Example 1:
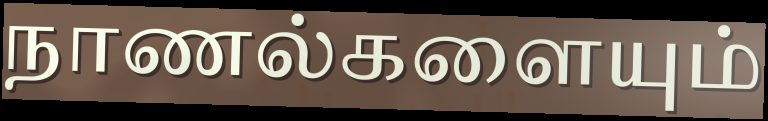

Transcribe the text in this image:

நாணல்களையும்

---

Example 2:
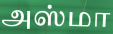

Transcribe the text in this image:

அஸ்மா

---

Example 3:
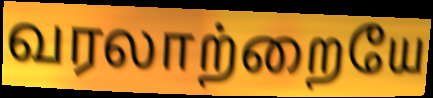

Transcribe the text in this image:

வரலாற்றையே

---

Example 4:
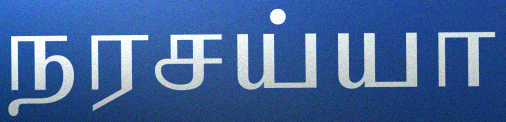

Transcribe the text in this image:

நரசய்யா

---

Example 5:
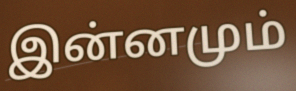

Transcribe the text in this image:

இன்னமும்